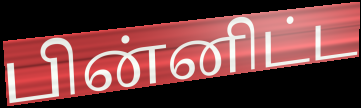
பின்னிட்ட